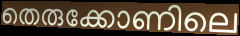
തെരുക്കോണിലെ